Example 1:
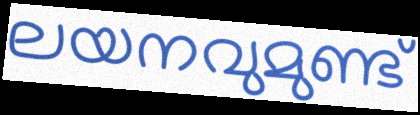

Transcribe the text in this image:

ലയനവുമുണ്ട്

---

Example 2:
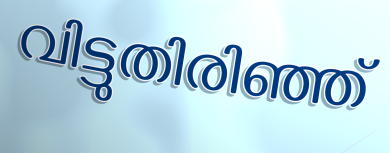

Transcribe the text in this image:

വിട്ടുതിരിഞ്ഞ്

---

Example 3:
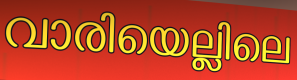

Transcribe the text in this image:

വാരിയെല്ലിലെ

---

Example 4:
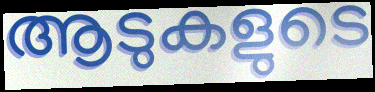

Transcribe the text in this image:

ആടുകളുടെ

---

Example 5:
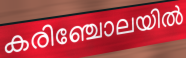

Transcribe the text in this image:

കരിഞ്ചോലയിൽ